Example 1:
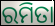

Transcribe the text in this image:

ରମିତା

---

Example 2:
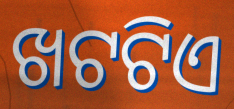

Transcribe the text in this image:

ଖଟଟିଏ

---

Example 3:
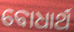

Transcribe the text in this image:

ବୋଧାର୍ଥ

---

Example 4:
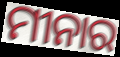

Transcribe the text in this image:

ମୀନାର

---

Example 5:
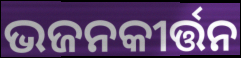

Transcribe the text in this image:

ଭଜନକୀର୍ତ୍ତନ